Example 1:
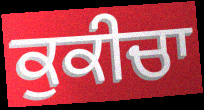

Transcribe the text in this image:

ਕੁਕੀਚਾ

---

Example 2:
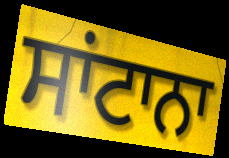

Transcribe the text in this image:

ਸਾਂਟਾਨਾ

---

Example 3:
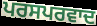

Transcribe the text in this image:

ਪਰਸਪਰਵਾਦ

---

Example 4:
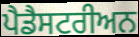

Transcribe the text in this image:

ਪੈਡੈਸਟਰੀਅਨ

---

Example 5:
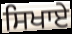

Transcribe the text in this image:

ਸਿਖਾਏ